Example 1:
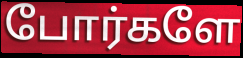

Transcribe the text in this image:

போர்களே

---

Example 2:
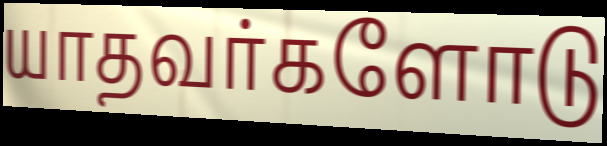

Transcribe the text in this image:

யாதவர்களோடு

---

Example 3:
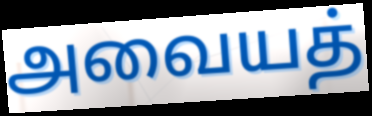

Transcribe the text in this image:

அவையத்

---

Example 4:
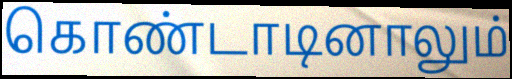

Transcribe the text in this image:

கொண்டாடினாலும்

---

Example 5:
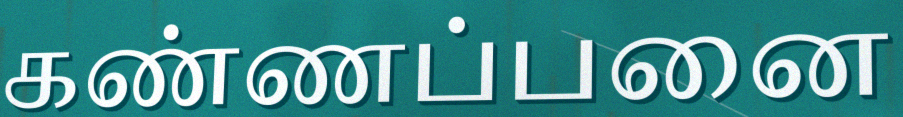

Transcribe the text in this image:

கண்ணப்பனை